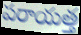
పరాయత్త